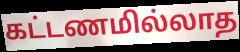
கட்டணமில்லாத